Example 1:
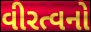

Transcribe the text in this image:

વીરત્વનો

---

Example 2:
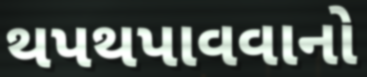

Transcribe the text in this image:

થપથપાવવાનો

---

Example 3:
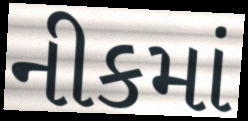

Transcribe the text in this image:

નીકમાં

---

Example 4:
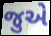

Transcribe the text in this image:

જુએ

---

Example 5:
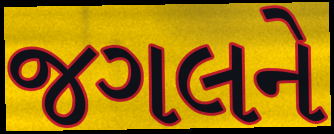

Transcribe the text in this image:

જગલને